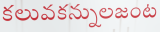
కలువకన్నులజంట